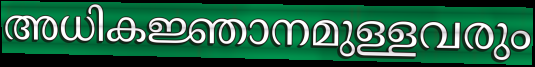
അധികജ്ഞാനമുള്ളവരും